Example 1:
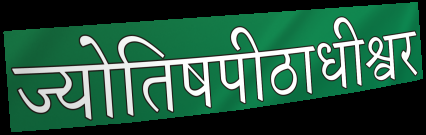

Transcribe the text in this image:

ज्योतिषपीठाधीश्वर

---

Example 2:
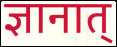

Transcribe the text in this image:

ज्ञानात्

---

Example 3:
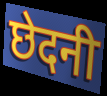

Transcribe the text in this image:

छेदनी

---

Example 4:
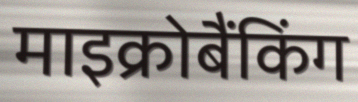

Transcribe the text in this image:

माइक्रोबैंकिंग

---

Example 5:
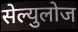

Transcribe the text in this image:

सेल्युलोज